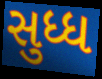
સુધ્ધ